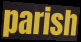
parish